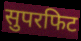
सुपरफिट